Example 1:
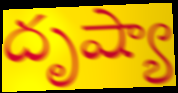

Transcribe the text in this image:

దృష్యా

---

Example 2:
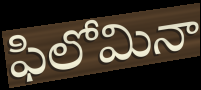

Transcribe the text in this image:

ఫిలోమినా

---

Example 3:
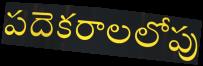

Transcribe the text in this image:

పదెకరాలలోపు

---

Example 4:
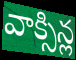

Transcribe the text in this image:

వాక్సిన్ల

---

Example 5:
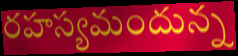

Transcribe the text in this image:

రహస్యమందున్న